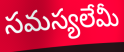
సమస్యలేమీ